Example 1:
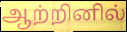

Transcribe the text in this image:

ஆற்றினில்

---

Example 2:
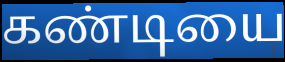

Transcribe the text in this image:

கண்டியை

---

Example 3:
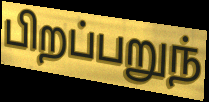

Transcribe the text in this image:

பிறப்பறுந்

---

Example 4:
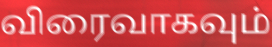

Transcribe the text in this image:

விரைவாகவும்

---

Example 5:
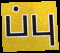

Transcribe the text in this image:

ப்பு